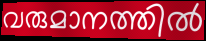
വരുമാനത്തിൽ